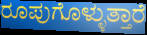
ರೂಪುಗೊಳ್ಳುತ್ತಾರೆ